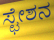
ಸ್ಟೇಶನ